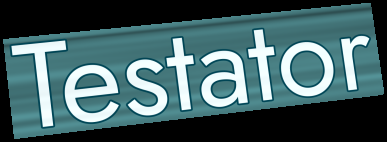
Testator